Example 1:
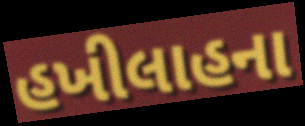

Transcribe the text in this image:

હખીલાહના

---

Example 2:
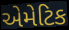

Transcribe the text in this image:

એમેટિક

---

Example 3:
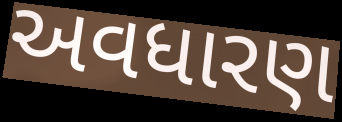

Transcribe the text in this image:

અવધારણ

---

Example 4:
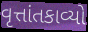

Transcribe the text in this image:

વૃત્તાંતકાવ્યો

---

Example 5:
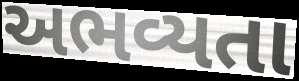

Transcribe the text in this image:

અભવ્યતા